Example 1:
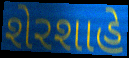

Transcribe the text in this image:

શેરશાહે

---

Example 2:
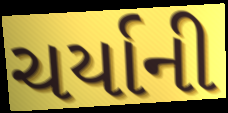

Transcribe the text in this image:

ચર્યાની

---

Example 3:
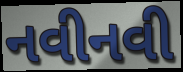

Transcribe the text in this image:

નવીનવી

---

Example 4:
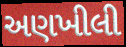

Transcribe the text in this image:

અણખીલી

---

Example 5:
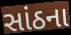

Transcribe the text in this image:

સાંઠના